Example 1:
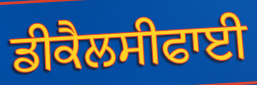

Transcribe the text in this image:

ਡੀਕੈਲਸੀਫਾਈ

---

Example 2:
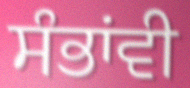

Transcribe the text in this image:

ਸੰਭਾਂਵੀ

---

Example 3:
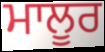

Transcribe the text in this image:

ਮਾਲੂਰ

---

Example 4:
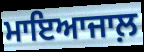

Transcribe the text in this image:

ਮਾਇਆਜਾਲ਼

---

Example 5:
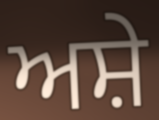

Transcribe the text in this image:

ਅਸ਼ੇ